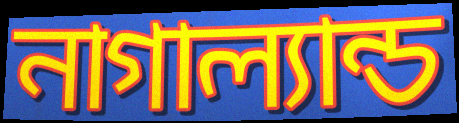
নাগাল্যান্ড